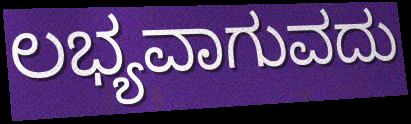
ಲಭ್ಯವಾಗುವದು